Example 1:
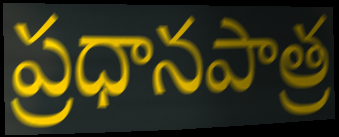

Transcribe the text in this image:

ప్రధానపాత్ర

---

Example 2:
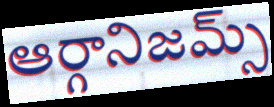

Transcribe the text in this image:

ఆర్గానిజమ్స్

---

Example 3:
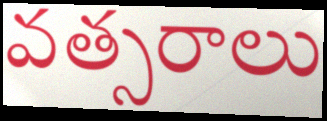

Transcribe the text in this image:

వత్సరాలు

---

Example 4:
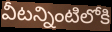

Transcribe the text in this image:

వీటన్నింటిలోకి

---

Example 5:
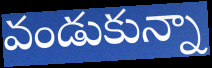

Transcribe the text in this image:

వండుకున్నా